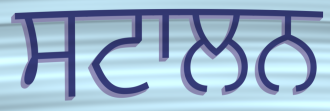
ਸਟਾਲਨ